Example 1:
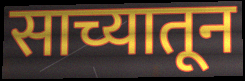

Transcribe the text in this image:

साच्यातून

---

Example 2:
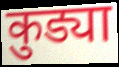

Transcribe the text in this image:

कुड्या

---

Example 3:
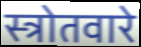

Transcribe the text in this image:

स्त्रोतवारे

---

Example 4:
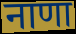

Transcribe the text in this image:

नाणा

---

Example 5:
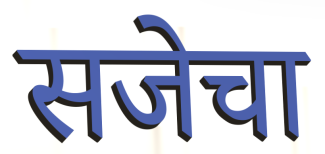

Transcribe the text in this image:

सजेचा